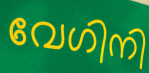
വേഗിനി